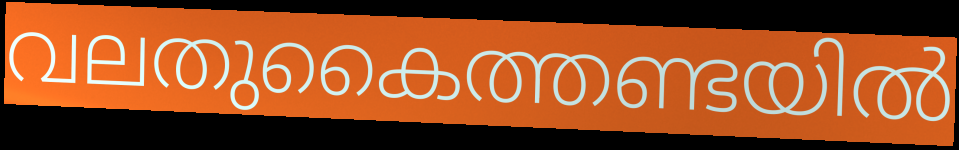
വലതുകൈത്തണ്ടയിൽ